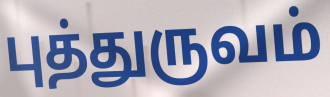
புத்துருவம்